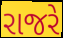
રાજરે